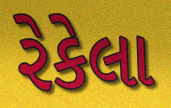
રેકેલા